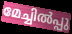
മേച്ചിൽപ്പു